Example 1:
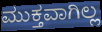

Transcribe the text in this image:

ಮುಕ್ತವಾಗಿಲ್ಲ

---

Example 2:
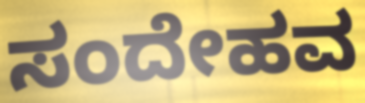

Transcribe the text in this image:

ಸಂದೇಹವ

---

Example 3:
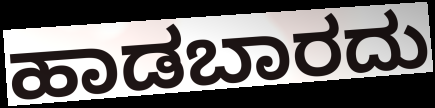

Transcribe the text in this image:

ಹಾಡಬಾರದು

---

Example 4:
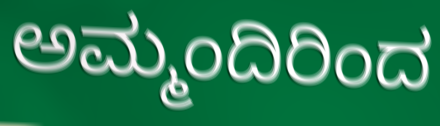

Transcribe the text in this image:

ಅಮ್ಮಂದಿರಿಂದ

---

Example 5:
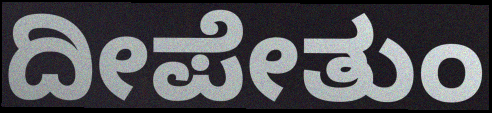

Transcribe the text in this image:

ದೀಪೇತುಂ